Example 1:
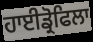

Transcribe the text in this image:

ਹਾਈਡ੍ਰੋਫਿਲਾ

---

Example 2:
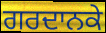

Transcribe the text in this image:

ਗਰਦਾਨਕੇ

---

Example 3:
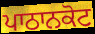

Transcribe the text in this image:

ਪਾਠਾਨਕੋਟ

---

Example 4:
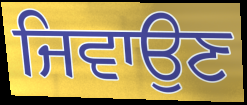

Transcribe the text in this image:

ਜਿਵਾਉਣ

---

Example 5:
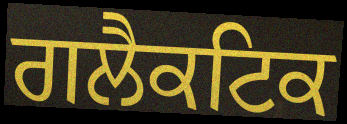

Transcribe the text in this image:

ਗਲੈਕਟਿਕ